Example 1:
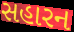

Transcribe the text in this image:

સહારન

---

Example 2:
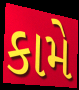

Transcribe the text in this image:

કામે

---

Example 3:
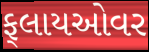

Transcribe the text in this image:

ફ્‌લાયઓવર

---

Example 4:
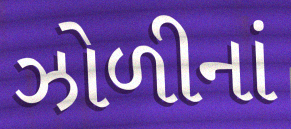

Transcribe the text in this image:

ઝોળીનાં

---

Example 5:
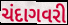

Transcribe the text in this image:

ચંદાગવરી